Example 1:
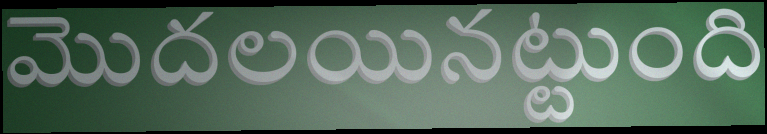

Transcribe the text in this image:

మొదలయినట్టుంది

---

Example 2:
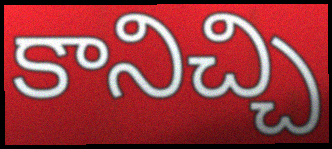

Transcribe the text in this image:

కానిచ్చి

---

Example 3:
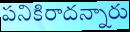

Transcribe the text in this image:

పనికిరాదన్నారు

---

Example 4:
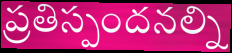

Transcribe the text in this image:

ప్రతిస్పందనల్ని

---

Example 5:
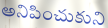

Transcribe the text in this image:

అనిపించుకుని